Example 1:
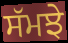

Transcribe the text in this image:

ਸੱਮਝੇ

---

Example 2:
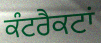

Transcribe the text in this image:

ਕੰਟਰੈਕਟਾਂ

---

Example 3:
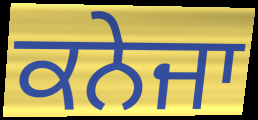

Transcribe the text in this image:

ਕਨੇਜਾ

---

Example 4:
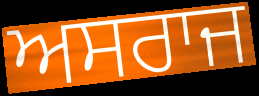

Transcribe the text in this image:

ਅਸਰਾਜ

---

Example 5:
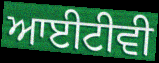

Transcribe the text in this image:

ਆਈਟੀਵੀ